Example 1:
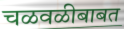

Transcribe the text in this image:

चळवळीबाबत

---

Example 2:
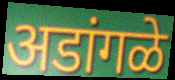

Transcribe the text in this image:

अडांगळे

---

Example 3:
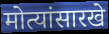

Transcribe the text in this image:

मोत्यांसारखे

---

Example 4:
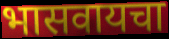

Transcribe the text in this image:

भासवायचा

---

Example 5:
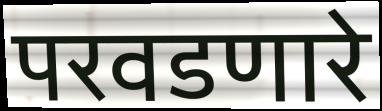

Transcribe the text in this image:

परवडणारे